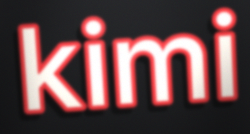
kimi